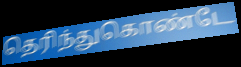
தெரிந்துகொண்டே